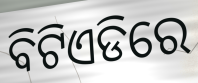
ବିଟିଏଡିରେ